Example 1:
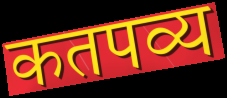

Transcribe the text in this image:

कतपव्य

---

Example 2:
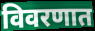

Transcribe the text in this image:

विवरणात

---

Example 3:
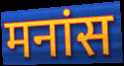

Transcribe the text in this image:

मनांस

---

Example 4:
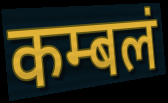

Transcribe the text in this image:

कम्बलं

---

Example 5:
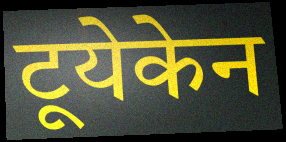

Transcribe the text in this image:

टूयेकेन